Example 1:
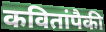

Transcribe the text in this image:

कवितांपैकी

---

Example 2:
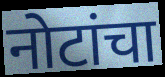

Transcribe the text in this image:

नोटांचा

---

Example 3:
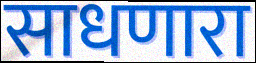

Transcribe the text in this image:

साधणारा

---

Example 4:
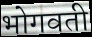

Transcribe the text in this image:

भोगवती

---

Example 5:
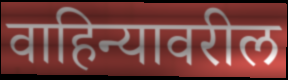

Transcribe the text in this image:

वाहिन्यावरील